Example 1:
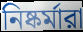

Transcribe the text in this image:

নিষ্কর্মারা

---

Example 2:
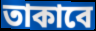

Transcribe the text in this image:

তাকাবে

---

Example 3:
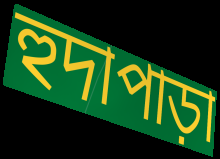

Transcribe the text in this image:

হুদাপাড়া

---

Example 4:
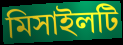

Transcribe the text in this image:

মিসাইলটি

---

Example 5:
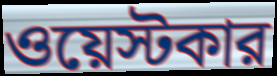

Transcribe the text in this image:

ওয়েস্টকার